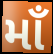
માઁ